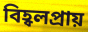
বিহ্বলপ্রায়